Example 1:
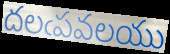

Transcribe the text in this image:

దలఁపవలయు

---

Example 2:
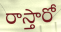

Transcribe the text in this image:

రాస్తారో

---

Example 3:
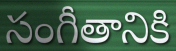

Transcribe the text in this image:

సంగీతానికి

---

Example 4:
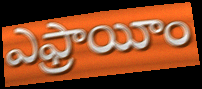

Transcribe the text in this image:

ఎఫ్రాయీం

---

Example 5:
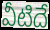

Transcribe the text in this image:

వీటిదే